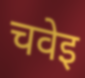
चवेइ